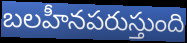
బలహీనపరుస్తుంది